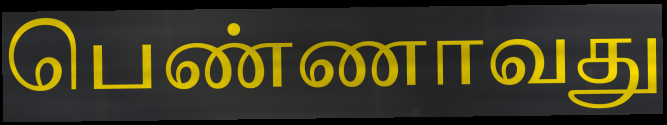
பெண்ணாவது